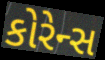
કોરેન્સ